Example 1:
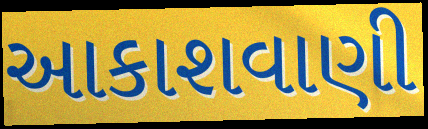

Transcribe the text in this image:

આકાશવાણી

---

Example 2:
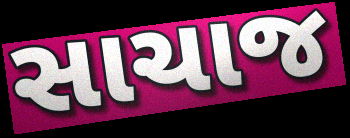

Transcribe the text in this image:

સાચાજ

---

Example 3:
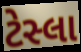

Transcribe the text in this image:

ટેસ્લા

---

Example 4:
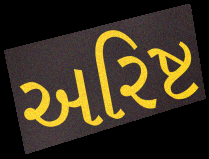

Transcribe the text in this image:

અરિષ્ટ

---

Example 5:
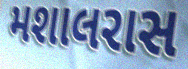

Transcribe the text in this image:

મશાલરાસ